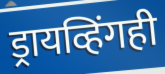
ड्रायव्हिंगही